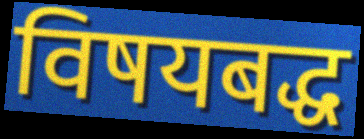
विषयबद्ध